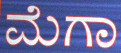
ಮೆಗಾ